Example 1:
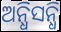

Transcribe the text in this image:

ଅନ୍ଧିସନ୍ଧି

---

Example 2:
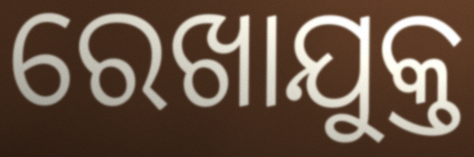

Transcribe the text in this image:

ରେଖାଯୁକ୍ତ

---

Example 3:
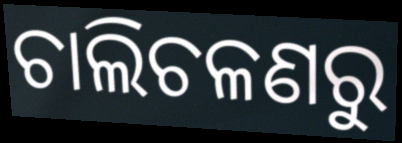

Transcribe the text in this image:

ଚାଲିଚଳଣରୁ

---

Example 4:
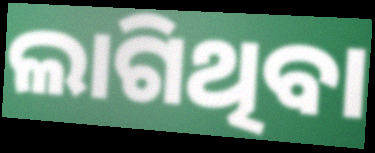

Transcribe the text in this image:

ଲାଗିଥିବା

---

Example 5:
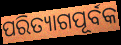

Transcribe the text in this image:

ପରିତ୍ୟାଗପୂର୍ବକ